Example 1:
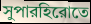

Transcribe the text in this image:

সুপারহিরোতে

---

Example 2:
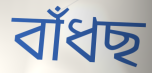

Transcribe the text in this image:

বাঁধছ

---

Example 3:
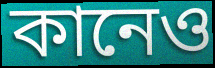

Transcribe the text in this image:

কানেও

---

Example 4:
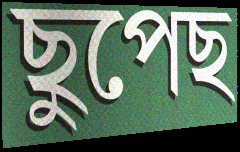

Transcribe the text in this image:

ছুপেছ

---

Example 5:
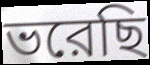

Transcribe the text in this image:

ভরেছি